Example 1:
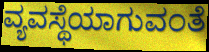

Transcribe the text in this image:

ವ್ಯವಸ್ಥೆಯಾಗುವಂತೆ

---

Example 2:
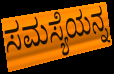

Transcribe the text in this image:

ಸಮಸ್ಯೆಯನ್ನ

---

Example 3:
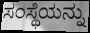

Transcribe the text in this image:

ಸಂಸ್ಥೆಯನ್ನು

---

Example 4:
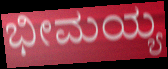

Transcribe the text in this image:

ಭೀಮಯ್ಯ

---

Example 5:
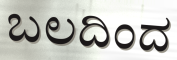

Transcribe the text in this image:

ಬಲದಿಂದ